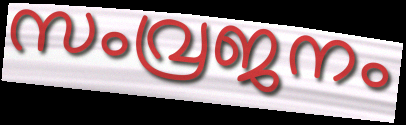
സംവ്രജനം